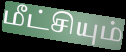
மீட்சியும்